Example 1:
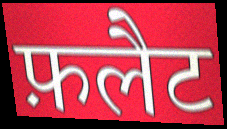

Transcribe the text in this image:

फ़लैट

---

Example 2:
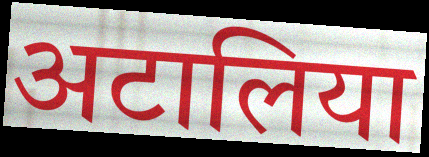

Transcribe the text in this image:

अटालिया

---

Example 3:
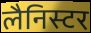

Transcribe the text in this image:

लैनिस्टर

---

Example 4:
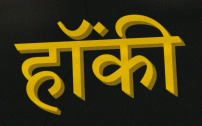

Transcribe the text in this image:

हॉंकी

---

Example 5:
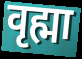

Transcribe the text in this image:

वृह्मा